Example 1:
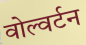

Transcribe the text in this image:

वोल्वर्टन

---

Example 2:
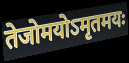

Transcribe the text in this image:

तेजोमयोऽमृतमयः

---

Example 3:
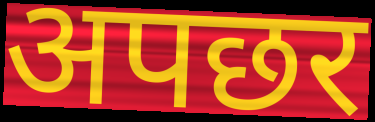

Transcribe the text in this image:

अपछर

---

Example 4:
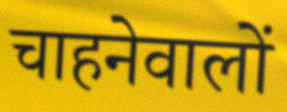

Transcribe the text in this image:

चाहनेवालों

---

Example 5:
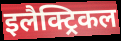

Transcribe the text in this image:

इलैक्ट्रिकल